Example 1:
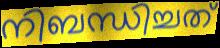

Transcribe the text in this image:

നിബന്ധിച്ചത്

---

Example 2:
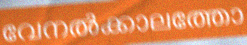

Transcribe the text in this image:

വേനൽക്കാലത്തോ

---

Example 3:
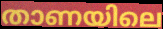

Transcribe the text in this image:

താണയിലെ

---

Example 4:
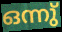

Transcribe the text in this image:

ഒന്നു്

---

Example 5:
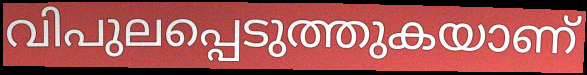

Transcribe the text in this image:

വിപുലപ്പെടുത്തുകയാണ്